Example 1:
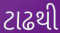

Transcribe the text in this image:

ટાઢથી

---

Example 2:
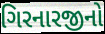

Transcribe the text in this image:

ગિરનારજીનો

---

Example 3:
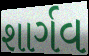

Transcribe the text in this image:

શાર્ગવ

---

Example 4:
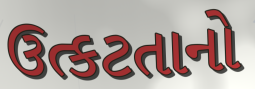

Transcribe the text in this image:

ઉત્કટતાનો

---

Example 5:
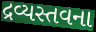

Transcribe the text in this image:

દ્રવ્યસ્તવના